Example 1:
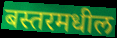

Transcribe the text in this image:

बस्तरमधील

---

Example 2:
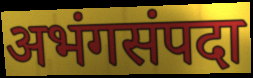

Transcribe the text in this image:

अभंगसंपदा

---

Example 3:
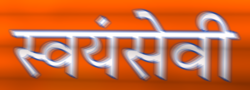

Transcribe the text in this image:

स्वयंसेवी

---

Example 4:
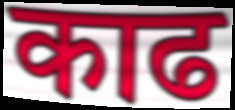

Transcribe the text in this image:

काढ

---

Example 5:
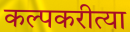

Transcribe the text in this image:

कल्पकरीत्या